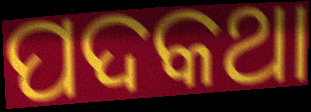
ପଦକଥା